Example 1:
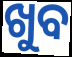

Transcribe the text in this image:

ଖୁବ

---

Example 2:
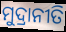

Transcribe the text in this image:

ମୁଦ୍ରାନୀତି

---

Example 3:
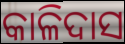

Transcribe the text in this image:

କାଳିଦାସ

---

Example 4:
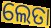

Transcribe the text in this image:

ଲେତା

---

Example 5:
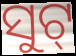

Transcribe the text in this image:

ସୁଟ୍